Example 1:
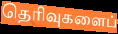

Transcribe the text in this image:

தெரிவுகளைப்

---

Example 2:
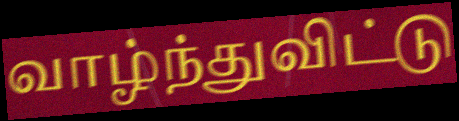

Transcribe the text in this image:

வாழ்ந்துவிட்டு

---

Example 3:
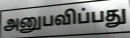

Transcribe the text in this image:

அனுபவிப்பது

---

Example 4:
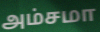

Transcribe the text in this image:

அம்சமா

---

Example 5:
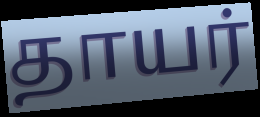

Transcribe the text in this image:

தாயர்